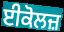
ਈਕੋਲਜ਼